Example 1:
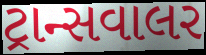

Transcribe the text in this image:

ટ્રાન્સવાલર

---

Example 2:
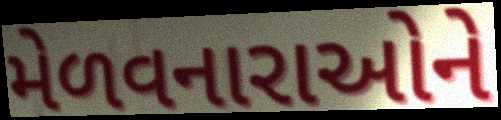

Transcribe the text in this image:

મેળવનારાઓને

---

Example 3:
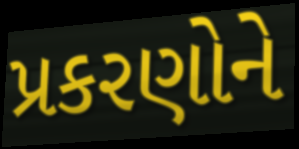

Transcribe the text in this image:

પ્રકરણોને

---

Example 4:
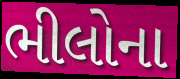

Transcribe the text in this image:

ભીલોના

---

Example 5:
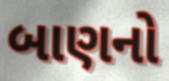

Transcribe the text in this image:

બાણનો